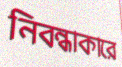
নিবন্ধাকারে